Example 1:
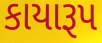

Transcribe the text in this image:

કાયારૂપ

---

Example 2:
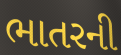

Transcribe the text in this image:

ભાતરની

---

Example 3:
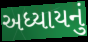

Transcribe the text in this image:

અધ્યાયનું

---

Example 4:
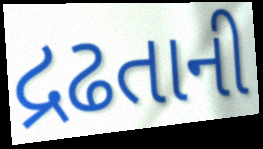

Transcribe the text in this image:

દ્રઢતાની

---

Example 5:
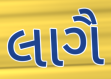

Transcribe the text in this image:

લાગૈ